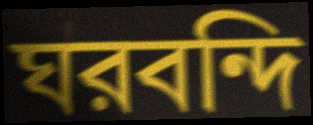
ঘরবন্দি